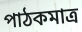
পাঠকমাত্র